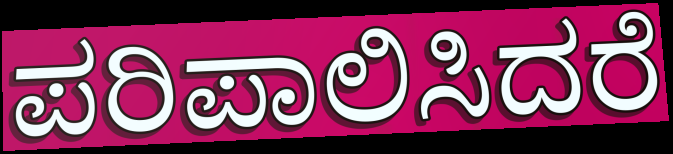
ಪರಿಪಾಲಿಸಿದರೆ